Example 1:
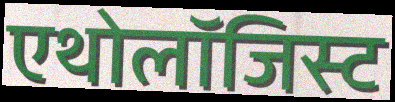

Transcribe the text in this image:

एथोलॉजिस्ट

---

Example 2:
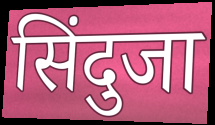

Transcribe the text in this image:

सिंदुजा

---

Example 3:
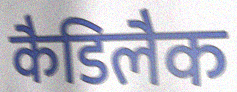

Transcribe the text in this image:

कैडिलैक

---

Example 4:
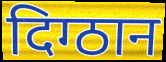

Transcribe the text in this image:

दिग्ठान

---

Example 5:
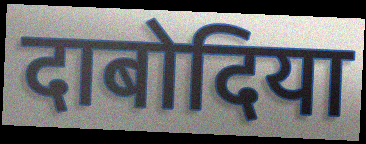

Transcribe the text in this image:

दाबोदिया